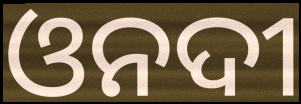
ଓନଦୀ